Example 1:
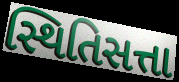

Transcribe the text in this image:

સ્થિતિસત્તા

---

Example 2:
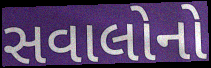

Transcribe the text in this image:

સવાલોનો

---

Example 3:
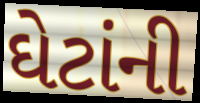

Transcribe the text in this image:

ઘેટાંની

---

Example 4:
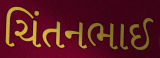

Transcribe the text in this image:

ચિંતનભાઈ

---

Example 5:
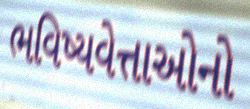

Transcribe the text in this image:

ભવિષ્યવેત્તાઓનો